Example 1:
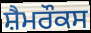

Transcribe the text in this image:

ਸ਼ੈਮਰੌਕਸ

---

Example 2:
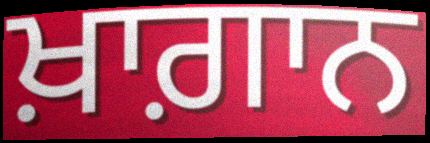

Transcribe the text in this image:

ਖ਼ਾਗ਼ਾਨ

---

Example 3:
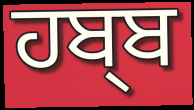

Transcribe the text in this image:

ਹਬ੍ਬ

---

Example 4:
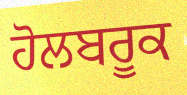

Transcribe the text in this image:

ਹੋਲਬਰੂਕ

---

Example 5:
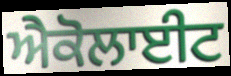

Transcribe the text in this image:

ਐਕੋਲਾਈਟ